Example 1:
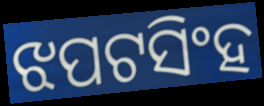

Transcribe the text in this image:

ଝପଟସିଂହ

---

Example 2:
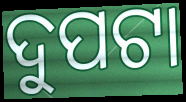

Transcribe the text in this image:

ଦୁପଟା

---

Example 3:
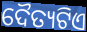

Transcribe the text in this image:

ଦୈତ୍ୟଟିଏ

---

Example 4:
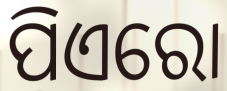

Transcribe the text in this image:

ପିଏରୋ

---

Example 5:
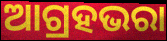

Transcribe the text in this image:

ଆଗ୍ରହଭରା